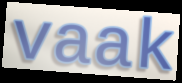
vaak